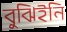
বুঝিইনি